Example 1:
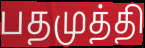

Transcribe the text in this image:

பதமுத்தி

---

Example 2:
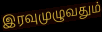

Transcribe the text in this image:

இரவுமுழுவதும்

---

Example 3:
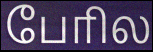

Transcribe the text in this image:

பேரில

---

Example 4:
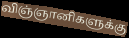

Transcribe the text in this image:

விஞ்ஞானிகளுக்கு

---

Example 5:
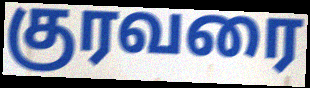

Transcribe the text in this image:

குரவரை